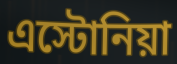
এস্টোনিয়া